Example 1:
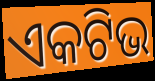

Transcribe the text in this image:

ଏକଟିଭ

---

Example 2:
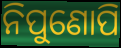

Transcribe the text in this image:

ନିପୁଣୋପି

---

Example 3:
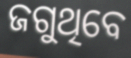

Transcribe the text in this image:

ଜଗୁଥିବେ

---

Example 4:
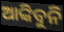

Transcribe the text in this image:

ଆଙ୍କିବୁନି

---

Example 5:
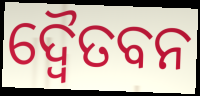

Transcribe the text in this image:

ଦ୍ବୈତବନ